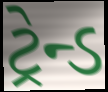
ટ્રેન્ડ